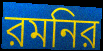
রমনির